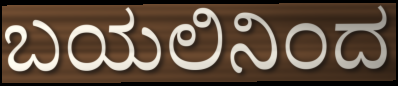
ಬಯಲಿನಿಂದ